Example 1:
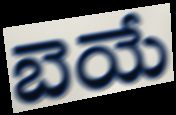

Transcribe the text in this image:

బెయే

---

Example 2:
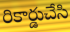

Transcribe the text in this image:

రికార్డుచేసి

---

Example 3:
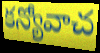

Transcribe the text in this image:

కన్యోవాచ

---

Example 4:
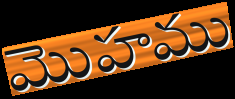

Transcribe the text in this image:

మొహము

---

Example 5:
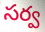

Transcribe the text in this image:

సర్వ